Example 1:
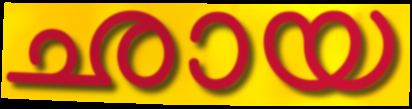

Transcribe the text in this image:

ഛായ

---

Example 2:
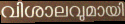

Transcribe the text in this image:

വിശാലവുമായി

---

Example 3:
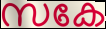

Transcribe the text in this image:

സകേ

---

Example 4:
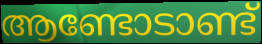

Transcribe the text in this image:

ആണ്ടോടാണ്ട്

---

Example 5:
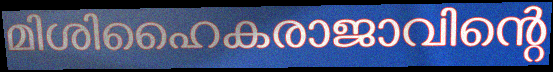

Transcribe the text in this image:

മിശിഹൈകരാജാവിന്റെ